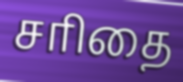
சரிதை